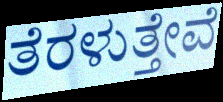
ತೆರಳುತ್ತೇವೆ